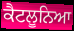
ਕੈਟਲੂਨਿਆ